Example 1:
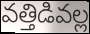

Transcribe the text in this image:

వత్తిడివల్ల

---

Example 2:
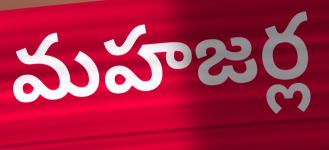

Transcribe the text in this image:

మహజర్ల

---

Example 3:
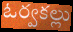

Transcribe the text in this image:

ఓర్వకల్లు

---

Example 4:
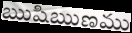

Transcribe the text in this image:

ఋషిఋణము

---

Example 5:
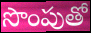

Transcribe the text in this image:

సొంపుతో